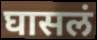
घासलं